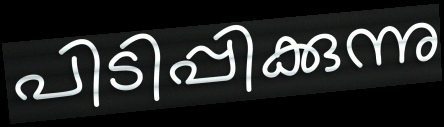
പിടിപ്പിക്കുന്നു